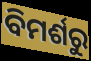
ବିମର୍ଶରୁ